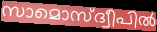
സാമൊസ്ദ്വീപിൽ